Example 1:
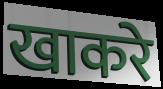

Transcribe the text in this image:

खाकरे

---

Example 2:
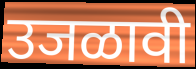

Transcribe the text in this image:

उजळावी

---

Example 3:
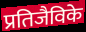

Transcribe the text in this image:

प्रतिजैविके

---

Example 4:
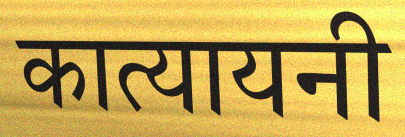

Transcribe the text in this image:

कात्यायनी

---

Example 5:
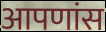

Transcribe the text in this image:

आपणांस